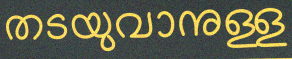
തടയുവാനുള്ള